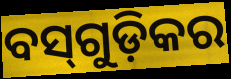
ବସ୍‌ଗୁଡ଼ିକର